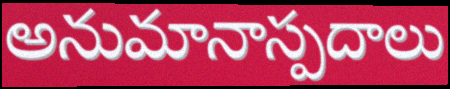
అనుమానాస్పదాలు